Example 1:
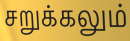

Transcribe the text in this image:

சறுக்கலும்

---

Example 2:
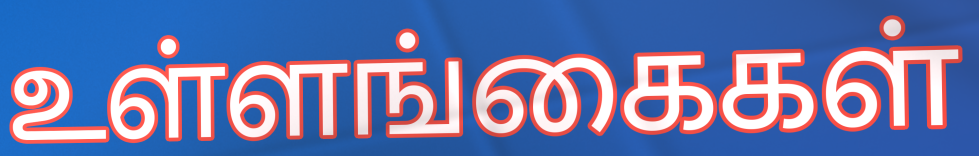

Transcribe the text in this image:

உள்ளங்கைகள்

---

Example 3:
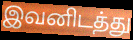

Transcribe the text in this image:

இவனிடத்து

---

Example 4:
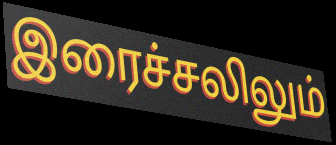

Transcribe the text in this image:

இரைச்சலிலும்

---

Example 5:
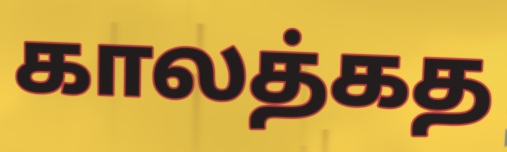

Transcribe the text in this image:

காலத்கத